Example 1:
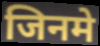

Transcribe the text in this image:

जिनमे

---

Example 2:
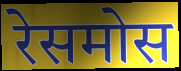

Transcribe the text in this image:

रेसमोस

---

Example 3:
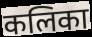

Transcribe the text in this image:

कलिका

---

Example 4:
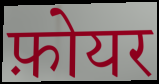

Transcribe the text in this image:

फ़ोयर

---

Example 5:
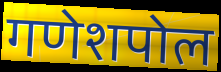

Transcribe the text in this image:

गणेशपोल